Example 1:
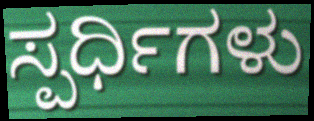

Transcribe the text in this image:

ಸ್ಪರ್ಧಿಗಳು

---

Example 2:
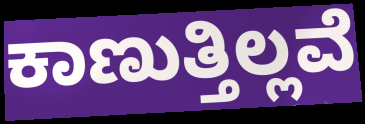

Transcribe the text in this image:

ಕಾಣುತ್ತಿಲ್ಲವೆ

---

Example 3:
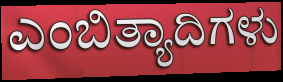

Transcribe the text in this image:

ಎಂಬಿತ್ಯಾದಿಗಳು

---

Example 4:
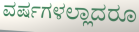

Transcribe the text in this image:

ವರ್ಷಗಳಲ್ಲಾದರೂ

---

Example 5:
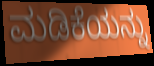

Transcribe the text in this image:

ಮಡಿಕೆಯನ್ನು